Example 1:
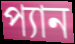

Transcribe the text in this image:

প্যান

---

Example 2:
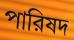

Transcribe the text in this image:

পারিষদ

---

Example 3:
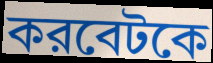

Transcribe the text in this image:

করবেটকে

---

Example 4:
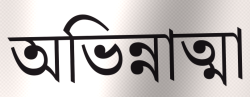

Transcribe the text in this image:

অভিন্নাত্মা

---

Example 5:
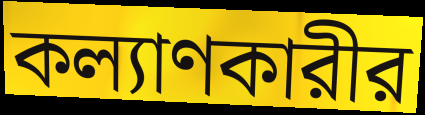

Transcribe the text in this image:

কল্যাণকারীর